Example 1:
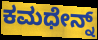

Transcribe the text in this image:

ಕಮಧೇನ್ನ್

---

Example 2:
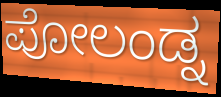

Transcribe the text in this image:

ಪೋಲಂಡ್ನ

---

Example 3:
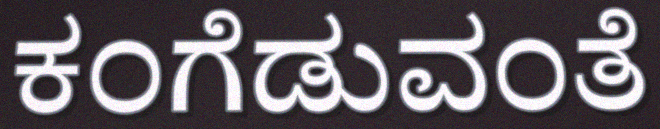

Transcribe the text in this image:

ಕಂಗೆಡುವಂತೆ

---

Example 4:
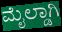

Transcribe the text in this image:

ಮೈಲ್ಡಾಗಿ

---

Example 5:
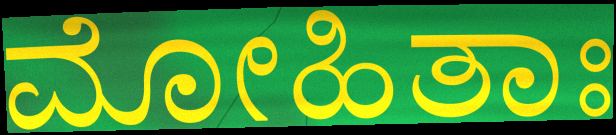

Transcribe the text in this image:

ಮೋಹಿತಾಃ